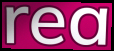
rea